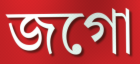
জগো